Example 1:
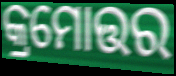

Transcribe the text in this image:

କ୍ରମୋତ୍ତର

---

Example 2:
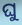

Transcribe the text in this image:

ଘୁ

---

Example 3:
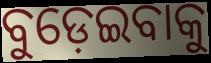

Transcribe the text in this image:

ବୁଡ଼େଇବାକୁ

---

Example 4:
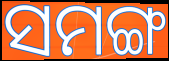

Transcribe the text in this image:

ସମଙ୍ଗ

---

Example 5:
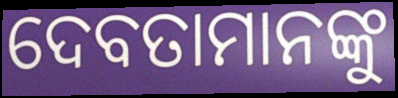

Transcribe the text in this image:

ଦେବତାମାନଙ୍କୁ